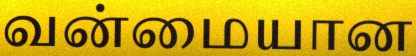
வன்மையான